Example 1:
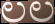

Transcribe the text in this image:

ಲಲ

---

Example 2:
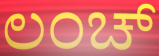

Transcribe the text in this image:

ಲಂಚ್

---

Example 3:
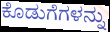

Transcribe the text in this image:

ಕೊಡುಗೆಗಳನ್ನು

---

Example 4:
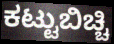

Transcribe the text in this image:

ಕಟ್ಟುಬಿಚ್ಚಿ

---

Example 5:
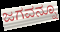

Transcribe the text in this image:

ಜಗವನ್ನೂ